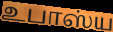
உபாஸ்ய